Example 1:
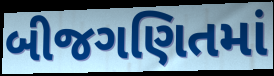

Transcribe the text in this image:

બીજગણિતમાં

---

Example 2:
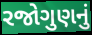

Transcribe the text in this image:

રજોગુણનું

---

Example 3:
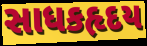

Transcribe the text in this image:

સાધકહૃદય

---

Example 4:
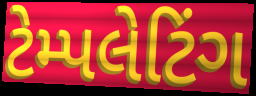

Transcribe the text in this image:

ટેમ્પલેટિંગ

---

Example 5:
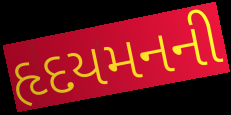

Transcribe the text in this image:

હૃદયમનની